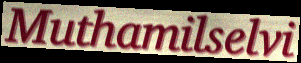
Muthamilselvi